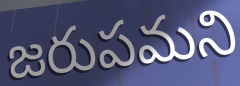
జరుపమని